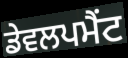
ਡੇਵਲਪਮੈਂਟ